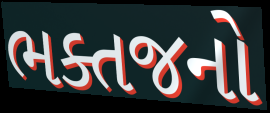
ભક્તજનો